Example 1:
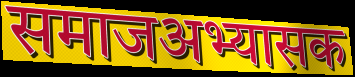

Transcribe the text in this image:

समाजअभ्यासक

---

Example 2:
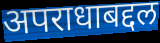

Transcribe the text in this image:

अपराधाबद्दल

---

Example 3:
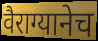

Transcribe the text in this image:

वैराग्यानेच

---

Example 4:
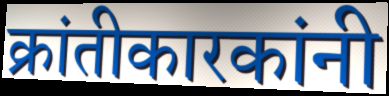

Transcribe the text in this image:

क्रांतीकारकांनी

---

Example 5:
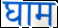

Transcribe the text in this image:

घाम